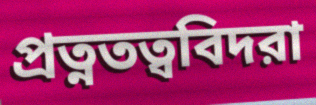
প্রত্নতত্ববিদরা